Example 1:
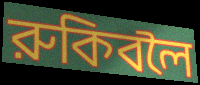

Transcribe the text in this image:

ৰুকিবলৈ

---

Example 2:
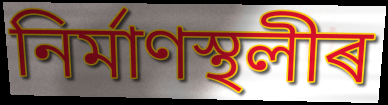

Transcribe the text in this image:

নিৰ্মাণস্থলীৰ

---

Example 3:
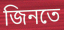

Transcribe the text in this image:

জিনতে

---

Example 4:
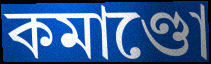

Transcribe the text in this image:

কমাণ্ডো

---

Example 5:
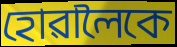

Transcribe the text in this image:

হোৱালৈকে